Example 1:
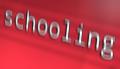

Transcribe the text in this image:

schooling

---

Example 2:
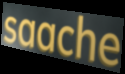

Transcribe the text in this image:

saache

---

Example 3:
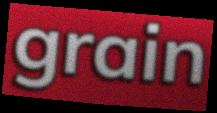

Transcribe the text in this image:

grain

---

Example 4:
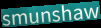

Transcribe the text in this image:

smunshaw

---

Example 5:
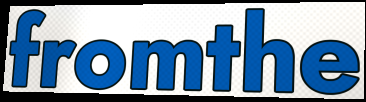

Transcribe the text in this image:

fromthe